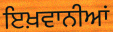
ਇਖ਼ਵਾਨੀਆਂ